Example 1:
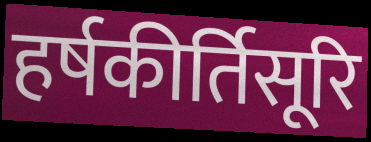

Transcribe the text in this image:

हर्षकीर्तिसूरि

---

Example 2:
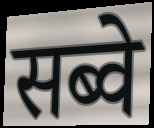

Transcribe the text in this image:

सब्वे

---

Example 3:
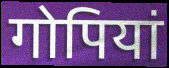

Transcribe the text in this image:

गोपियां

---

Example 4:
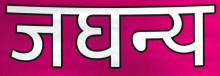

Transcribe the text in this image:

जघन्य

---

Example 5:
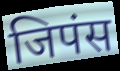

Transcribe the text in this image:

जिपंस